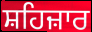
ਸ਼ਹਿਜ਼ਾਰ